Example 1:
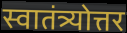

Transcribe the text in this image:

स्वातंत्र्योत्तर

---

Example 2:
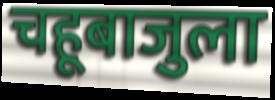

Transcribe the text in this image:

चहूबाजुला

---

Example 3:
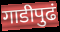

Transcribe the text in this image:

गाडीपुढं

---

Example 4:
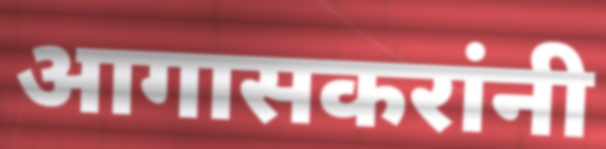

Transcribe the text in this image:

आगासकरांनी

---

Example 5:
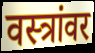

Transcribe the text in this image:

वस्त्रांवर